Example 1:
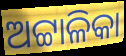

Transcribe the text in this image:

ଅଟ୍ଟାଳିକା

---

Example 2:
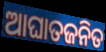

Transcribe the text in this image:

ଆଘାତଜନିତ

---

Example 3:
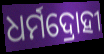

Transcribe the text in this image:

ଧର୍ମଦ୍ରୋହୀ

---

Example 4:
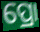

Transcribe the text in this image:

ପ୍ରୋ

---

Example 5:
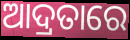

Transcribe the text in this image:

ଆଦ୍ରତାରେ